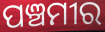
ପଞ୍ଚମୀର